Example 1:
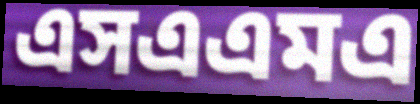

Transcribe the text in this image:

এসএএমএ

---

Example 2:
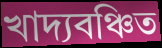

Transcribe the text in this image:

খাদ্যবঞ্চিত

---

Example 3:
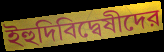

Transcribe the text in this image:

ইহুদিবিদ্বেষীদের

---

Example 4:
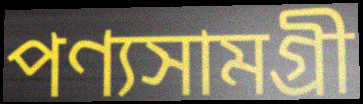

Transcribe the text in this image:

পণ্যসামগ্রী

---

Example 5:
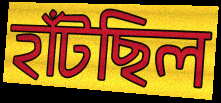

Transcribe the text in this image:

হাঁটছিল